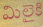
మిలైకి